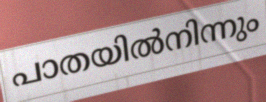
പാതയിൽനിന്നും